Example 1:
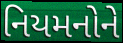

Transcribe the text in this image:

નિયમનોને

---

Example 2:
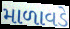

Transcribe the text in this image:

માળાવડે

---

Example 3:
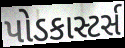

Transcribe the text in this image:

પોડકાસ્ટર્સ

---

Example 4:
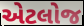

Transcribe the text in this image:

એટલોજ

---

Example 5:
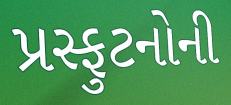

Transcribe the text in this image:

પ્રસ્ફુટનોની